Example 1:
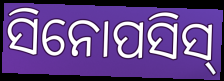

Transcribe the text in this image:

ସିନୋପସିସ୍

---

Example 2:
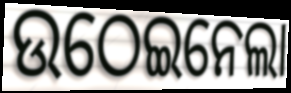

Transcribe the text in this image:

ଉଠେଇନେଲା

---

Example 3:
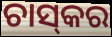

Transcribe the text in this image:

ଚାସ୍‌କର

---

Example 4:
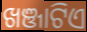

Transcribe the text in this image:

ଖଞ୍ଜାଟିଏ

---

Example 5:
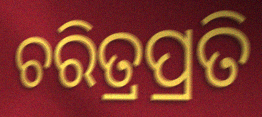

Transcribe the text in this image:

ଚରିତ୍ରପ୍ରତି